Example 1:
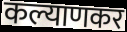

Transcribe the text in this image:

कल्याणकर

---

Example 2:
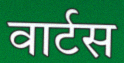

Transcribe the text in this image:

वार्टस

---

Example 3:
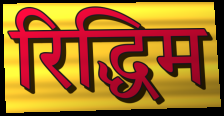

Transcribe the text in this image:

रिद्धिम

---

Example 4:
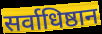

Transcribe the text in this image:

सर्वाधिष्ठान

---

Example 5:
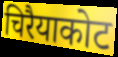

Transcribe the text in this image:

चिरैयाकोट